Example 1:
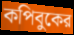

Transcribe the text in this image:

কপিবুকের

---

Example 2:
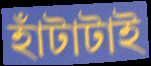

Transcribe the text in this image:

হাঁটাটাই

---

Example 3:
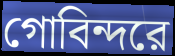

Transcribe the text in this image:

গোবিন্দরে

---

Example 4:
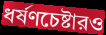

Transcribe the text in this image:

ধর্ষণচেষ্টারও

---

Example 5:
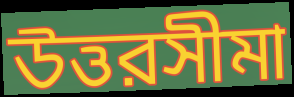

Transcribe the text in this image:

উত্তরসীমা